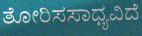
ತೋರಿಸಸಾಧ್ಯವಿದೆ